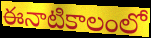
ఈనాటికాలంలో